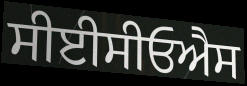
ਸੀਈਸੀਓਐਸ